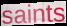
saints